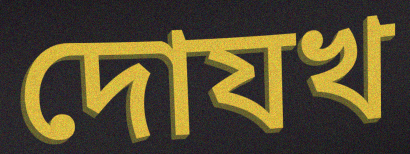
দোযখ